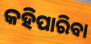
କହିପାରିବା